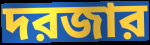
দরজার